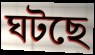
ঘটছে